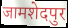
जामशेदपुर